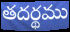
తదర్థము